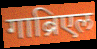
गाब्रिएल